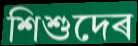
শিশুদেৰ